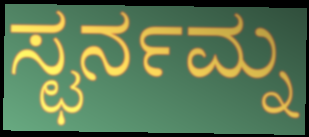
ಸ್ಟರ್ನಮ್ನ